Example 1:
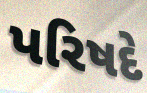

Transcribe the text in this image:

પરિષદે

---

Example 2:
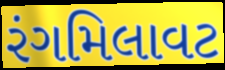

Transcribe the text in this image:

રંગમિલાવટ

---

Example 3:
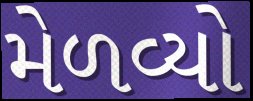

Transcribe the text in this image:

મેળવ્યો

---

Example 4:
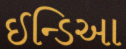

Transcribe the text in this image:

ઈન્ડિઆ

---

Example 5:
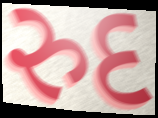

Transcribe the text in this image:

રુદ